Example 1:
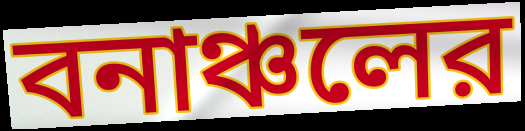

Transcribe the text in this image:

বনাঞ্চলের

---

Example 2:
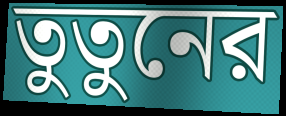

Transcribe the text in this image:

তুতুনের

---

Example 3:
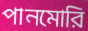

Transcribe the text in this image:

পানমোরি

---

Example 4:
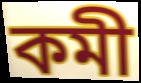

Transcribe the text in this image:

কমী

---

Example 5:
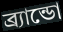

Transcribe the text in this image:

ব্র্যান্ডো